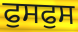
ਫੁਸਫੁਸ